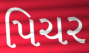
પિચર